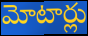
మోటార్లు